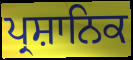
ਪ੍ਰਸ਼ਾਨਿਕ